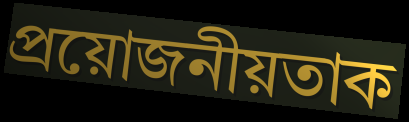
প্ৰয়োজনীয়তাক